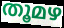
തൂമഴ